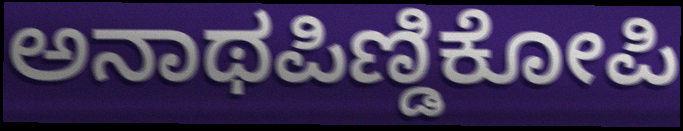
ಅನಾಥಪಿಣ್ಡಿಕೋಪಿ